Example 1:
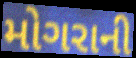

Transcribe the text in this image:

મોગરાની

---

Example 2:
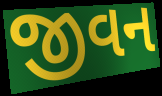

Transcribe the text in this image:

જીવન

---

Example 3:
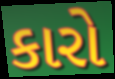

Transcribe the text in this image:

કારો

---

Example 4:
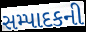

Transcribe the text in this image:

સમ્પાદકની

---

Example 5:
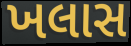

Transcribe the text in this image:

ખલાસ